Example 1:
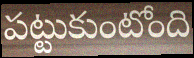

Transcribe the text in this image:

పట్టుకుంటోంది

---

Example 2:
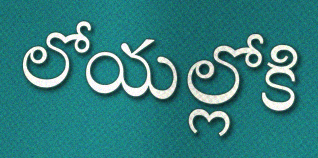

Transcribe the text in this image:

లోయల్లోకి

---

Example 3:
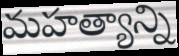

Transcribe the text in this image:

మహత్యాన్ని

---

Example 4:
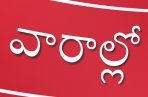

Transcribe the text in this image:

వారాల్లో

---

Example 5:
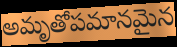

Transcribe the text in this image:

అమృతోపమానమైన